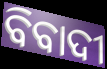
ବିବାଦୀ